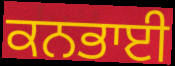
ਕਨਭਾਈ